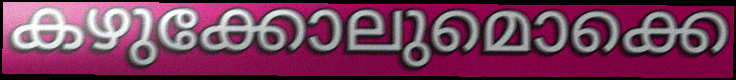
കഴുക്കോലുമൊക്കെ